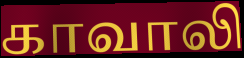
காவாலி